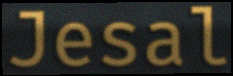
Jesal